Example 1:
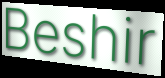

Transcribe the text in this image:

Beshir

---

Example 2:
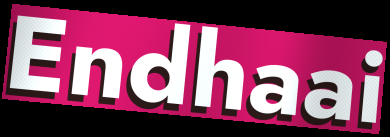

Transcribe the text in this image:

Endhaai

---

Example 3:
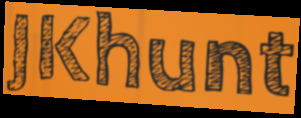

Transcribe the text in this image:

JKhunt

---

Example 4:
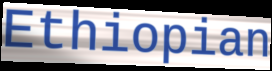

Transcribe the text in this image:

Ethiopian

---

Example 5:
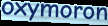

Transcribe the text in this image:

oxymoron